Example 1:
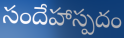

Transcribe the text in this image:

సందేహాస్పదం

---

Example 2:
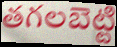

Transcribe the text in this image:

తగలబెట్టి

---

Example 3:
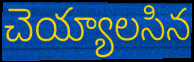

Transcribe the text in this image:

చెయ్యాలసిన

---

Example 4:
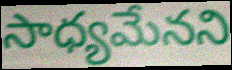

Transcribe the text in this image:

సాధ్యమేనని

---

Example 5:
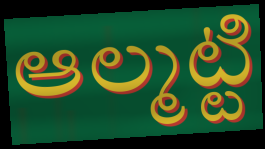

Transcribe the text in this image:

ఆల్మట్టి